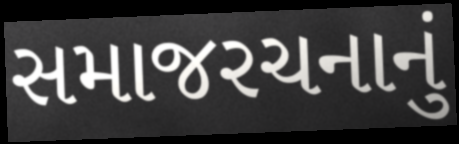
સમાજરચનાનું